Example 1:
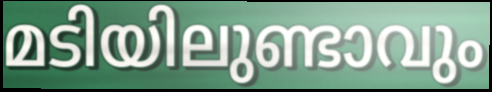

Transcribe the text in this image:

മടിയിലുണ്ടാവും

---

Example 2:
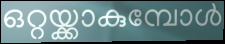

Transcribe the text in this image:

ഒറ്റയ്ക്കാകുമ്പോൾ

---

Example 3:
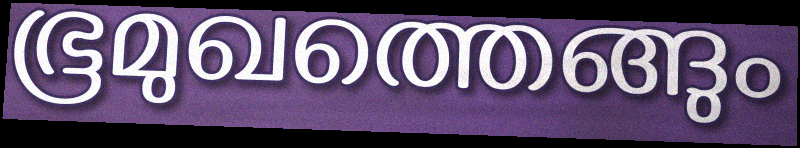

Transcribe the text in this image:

ഭൂമുഖത്തെങ്ങും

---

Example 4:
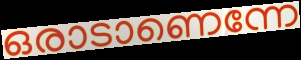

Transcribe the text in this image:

ഒരാടാണെന്നേ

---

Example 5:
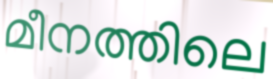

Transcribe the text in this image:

മീനത്തിലെ